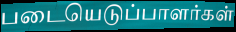
படையெடுப்பாளர்கள்